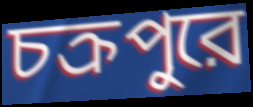
চক্রপুরে